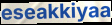
eseakkiyaa